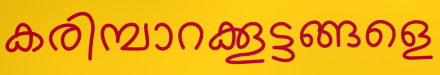
കരിമ്പാറക്കൂട്ടങ്ങളെ